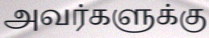
அவர்களுக்கு